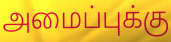
அமைப்புக்கு